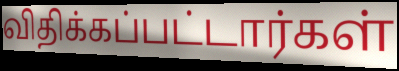
விதிக்கப்பட்டார்கள்